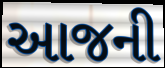
આજની